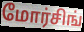
மோர்சிங்